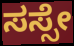
ಸಸ್ಸೇ